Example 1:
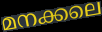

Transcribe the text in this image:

മനക്കലെ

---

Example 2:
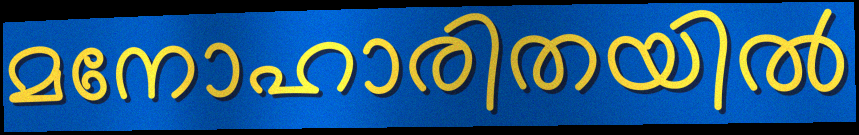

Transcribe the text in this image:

മനോഹാരിതയിൽ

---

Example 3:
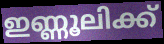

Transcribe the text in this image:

ഇണ്ണൂലിക്ക്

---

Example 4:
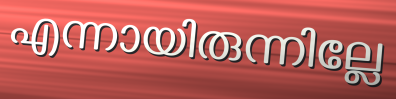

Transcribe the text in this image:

എന്നായിരുന്നില്ലേ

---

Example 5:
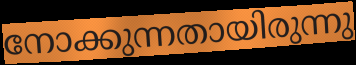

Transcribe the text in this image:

നോക്കുന്നതായിരുന്നു